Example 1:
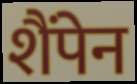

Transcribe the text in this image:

शैंपेन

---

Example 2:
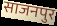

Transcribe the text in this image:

साजनपुर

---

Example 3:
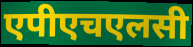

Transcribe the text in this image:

एपीएचएलसी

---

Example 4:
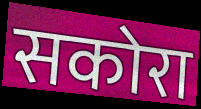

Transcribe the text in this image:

सकोरा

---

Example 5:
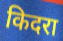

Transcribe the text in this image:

किदरा